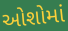
ઓશોમાં